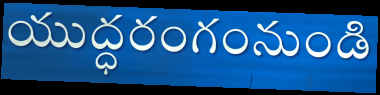
యుద్ధరంగంనుండి